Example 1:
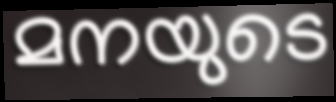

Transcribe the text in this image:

മനയുടെ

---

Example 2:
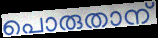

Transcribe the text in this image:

പൊരുതാന്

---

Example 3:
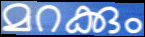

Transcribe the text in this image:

മറക്കും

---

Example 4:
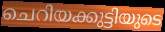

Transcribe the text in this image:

ചെറിയക്കുട്ടിയുടെ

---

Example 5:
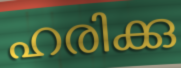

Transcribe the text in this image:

ഹരിക്കു